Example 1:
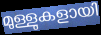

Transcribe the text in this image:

മുള്ളുകളായി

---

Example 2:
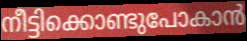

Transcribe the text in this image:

നീട്ടിക്കൊണ്ടുപോകാൻ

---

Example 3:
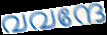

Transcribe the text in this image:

വവന്ദേ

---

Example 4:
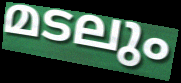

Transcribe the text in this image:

മടലും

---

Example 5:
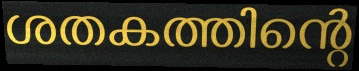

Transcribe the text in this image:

ശതകത്തിന്റെ